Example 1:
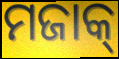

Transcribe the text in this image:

ମଜାକ୍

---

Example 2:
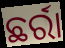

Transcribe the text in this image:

ଛର୍ରା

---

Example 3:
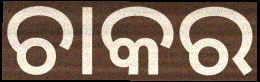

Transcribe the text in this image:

ଚାକର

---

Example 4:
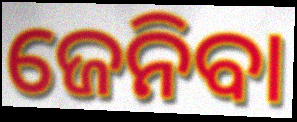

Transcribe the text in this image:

ଜେନିବା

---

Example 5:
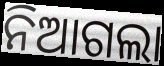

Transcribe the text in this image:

ନିଆଗଲା